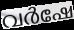
വർഷേ